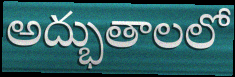
అద్భుతాలలో